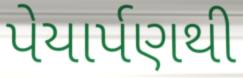
પેયાર્પણથી